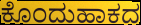
ಕೊಂದುಹಾಕದ